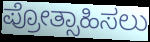
ಪ್ರೋತ್ಸಾಹಿಸಲು